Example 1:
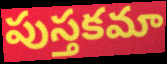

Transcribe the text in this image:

పుస్తకమా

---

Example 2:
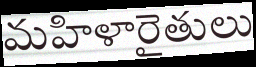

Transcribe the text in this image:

మహిళారైతులు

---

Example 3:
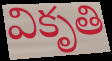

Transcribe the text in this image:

వికృతి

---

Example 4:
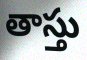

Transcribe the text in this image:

తాస్తు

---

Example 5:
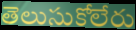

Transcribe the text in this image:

తెలుసుకోలేరు